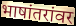
भाषांतरांवर